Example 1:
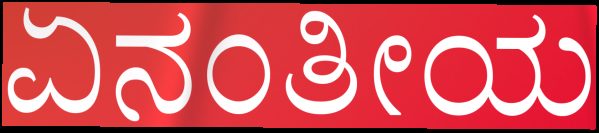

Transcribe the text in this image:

ಏನಂತೀಯ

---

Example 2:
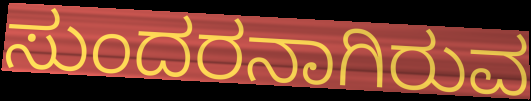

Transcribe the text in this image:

ಸುಂದರನಾಗಿರುವ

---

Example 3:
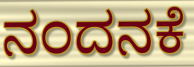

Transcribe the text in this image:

ನಂದನಕೆ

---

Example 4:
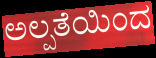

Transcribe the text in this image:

ಅಲ್ಪತೆಯಿಂದ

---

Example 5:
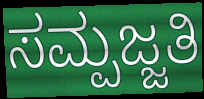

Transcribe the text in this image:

ಸಮ್ಪಜ್ಜತಿ